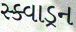
સ્ક્વાડ્રન